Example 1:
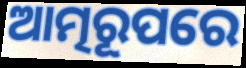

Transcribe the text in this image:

ଆତ୍ମରୂପରେ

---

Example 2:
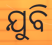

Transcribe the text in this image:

ଯୁବି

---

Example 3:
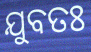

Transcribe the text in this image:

ଯୁବତଃ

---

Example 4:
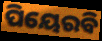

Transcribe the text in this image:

ପିୟେରବି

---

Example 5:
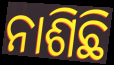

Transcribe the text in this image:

ନାଶିଛି